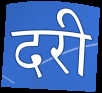
दरी